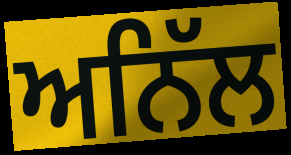
ਅਨਿੱਲ